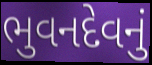
ભુવનદેવનું